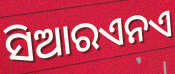
ସିଆରଏନଏ